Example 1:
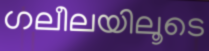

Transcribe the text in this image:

ഗലീലയിലൂടെ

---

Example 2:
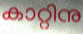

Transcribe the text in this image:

കാറ്റിനു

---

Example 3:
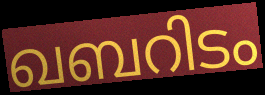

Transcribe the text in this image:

ഖബറിടം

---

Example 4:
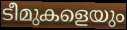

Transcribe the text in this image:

ടീമുകളെയും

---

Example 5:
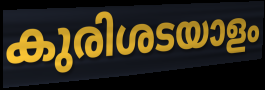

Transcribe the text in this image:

കുരിശടയാളം